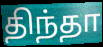
திந்தா